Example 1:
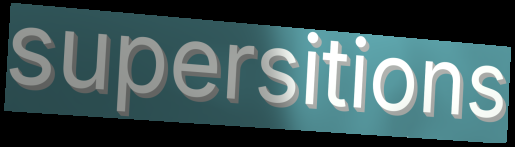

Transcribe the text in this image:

supersitions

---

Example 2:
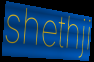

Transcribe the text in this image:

shethji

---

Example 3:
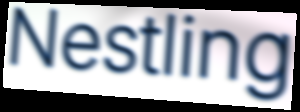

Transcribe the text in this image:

Nestling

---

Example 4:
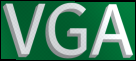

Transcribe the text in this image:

VGA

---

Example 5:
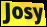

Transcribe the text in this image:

Josy